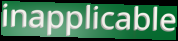
inapplicable